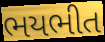
ભયભીત